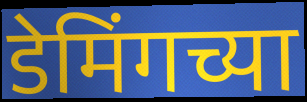
डेमिंगच्या